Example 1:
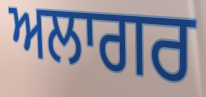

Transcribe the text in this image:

ਅਲਾਗਰ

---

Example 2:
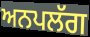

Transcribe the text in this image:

ਅਨਪਲੱਗ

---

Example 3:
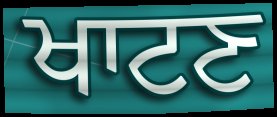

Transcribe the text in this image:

ਖਾਟਣ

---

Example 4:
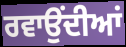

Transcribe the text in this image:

ਰਵਾਉਂਦੀਆਂ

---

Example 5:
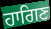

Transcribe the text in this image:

ਹਾਗਿਣ